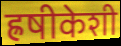
ह्रषीकेशी